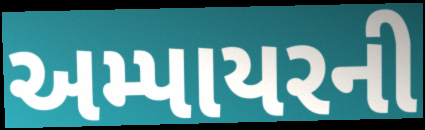
અમ્પાયરની